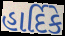
હાર્દિકે